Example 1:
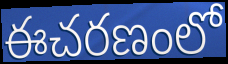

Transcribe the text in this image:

ఈచరణంలో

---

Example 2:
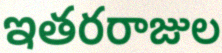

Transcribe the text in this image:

ఇతరరాజుల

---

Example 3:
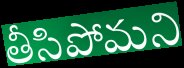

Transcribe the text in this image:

తీసిపోమని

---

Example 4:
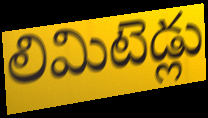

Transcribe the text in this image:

లిమిటెడ్లు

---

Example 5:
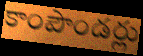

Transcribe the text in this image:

కాంపౌండర్లు